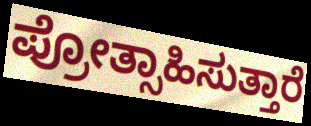
ಪ್ರೋತ್ಸಾಹಿಸುತ್ತಾರೆ